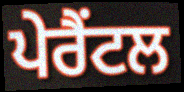
ਪੇਰੈਂਟਲ